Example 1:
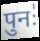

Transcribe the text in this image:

पुनः॑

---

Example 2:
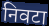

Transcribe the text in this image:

निवटा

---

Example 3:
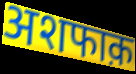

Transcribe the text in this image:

अशफाक़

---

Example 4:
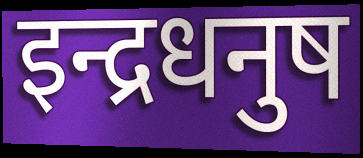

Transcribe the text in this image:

इन्‍द्रधनुष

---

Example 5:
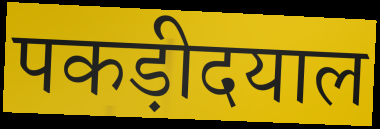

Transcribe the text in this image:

पकड़ीदयाल